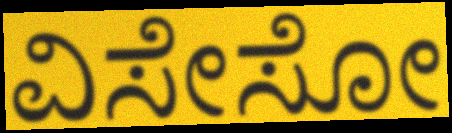
ವಿಸೇಸೋ